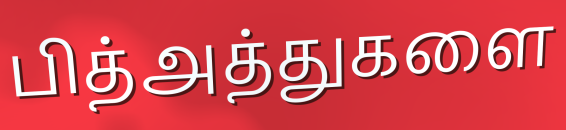
பித்அத்துகளை